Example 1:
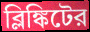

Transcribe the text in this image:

ব্লিঙ্কিটের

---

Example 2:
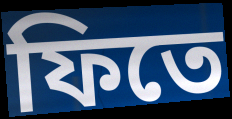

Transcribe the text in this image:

ফিতে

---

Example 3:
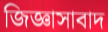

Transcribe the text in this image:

জিজ্ঞাসাবাদ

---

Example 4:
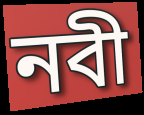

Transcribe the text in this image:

নবী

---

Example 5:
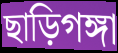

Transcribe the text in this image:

ছাড়িগঙ্গা